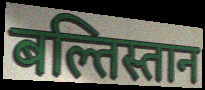
बल्तिस्तान